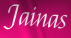
Jainas